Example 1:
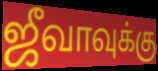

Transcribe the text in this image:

ஜீவாவுக்கு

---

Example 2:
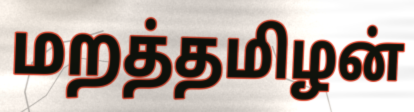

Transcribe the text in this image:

மறத்தமிழன்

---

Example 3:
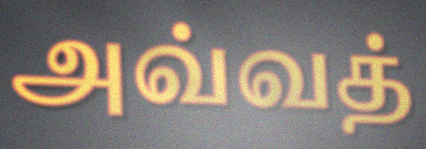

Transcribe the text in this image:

அவ்வத்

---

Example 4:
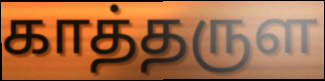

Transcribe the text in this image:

காத்தருள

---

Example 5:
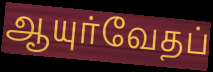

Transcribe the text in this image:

ஆயுர்வேதப்